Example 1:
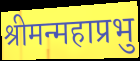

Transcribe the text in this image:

श्रीमन्महाप्रभु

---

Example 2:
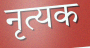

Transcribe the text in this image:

नृत्यक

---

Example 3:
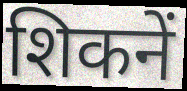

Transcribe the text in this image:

शिकनें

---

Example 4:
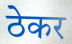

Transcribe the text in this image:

ठेकर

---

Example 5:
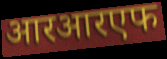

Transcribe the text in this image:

आरआरएफ